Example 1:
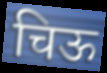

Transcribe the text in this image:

चिऊ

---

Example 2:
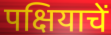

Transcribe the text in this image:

पक्षियाचें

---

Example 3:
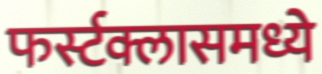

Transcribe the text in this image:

फर्स्टक्लासमध्ये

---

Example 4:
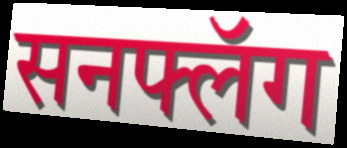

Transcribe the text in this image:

सनफ्लॅग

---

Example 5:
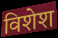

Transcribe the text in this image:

विशेश